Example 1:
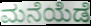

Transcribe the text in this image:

ಮನೆಯೆಡೆ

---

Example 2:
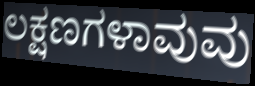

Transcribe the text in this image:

ಲಕ್ಷಣಗಳಾವುವು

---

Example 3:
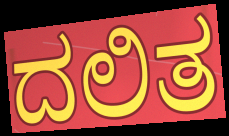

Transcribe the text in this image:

ದಲಿತ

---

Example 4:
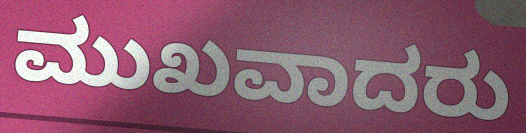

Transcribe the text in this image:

ಮುಖವಾದರು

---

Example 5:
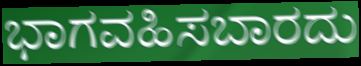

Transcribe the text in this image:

ಭಾಗವಹಿಸಬಾರದು